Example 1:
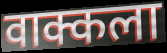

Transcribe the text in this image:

वाक्कला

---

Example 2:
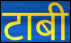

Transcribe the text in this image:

टाबी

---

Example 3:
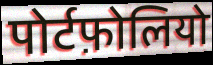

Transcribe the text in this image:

पोर्टफ़ोलियो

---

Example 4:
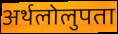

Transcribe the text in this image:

अर्थलोलुपता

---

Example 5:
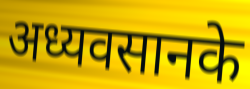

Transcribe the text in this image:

अध्यवसानके